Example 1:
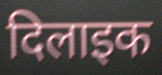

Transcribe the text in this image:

दिलाइक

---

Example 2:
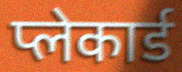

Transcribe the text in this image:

प्लेकार्ड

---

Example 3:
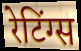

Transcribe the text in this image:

रेटिंग्स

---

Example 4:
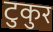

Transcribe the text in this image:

टुकुर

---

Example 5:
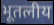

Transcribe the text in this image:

भूतलीय